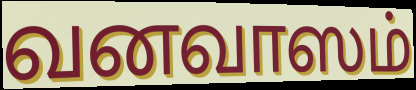
வனவாஸம்